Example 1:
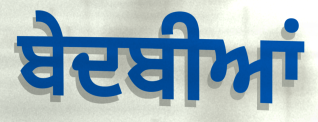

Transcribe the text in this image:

ਬੇਦਬੀਆਂ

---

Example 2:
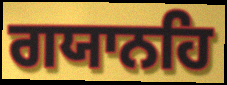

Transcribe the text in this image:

ਗਯਾਨਹਿ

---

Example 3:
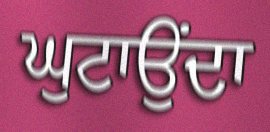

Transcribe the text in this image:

ਘੁਟਾਉਂਦਾ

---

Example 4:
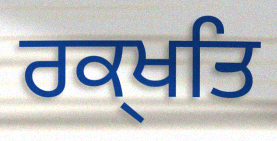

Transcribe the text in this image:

ਰਕ੍ਖਤਿ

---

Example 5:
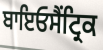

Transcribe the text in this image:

ਬਾਇਓਸੈਂਟ੍ਰਿਕ